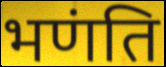
भणंति